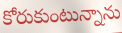
కోరుకుంటున్నాను